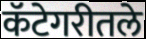
कॅटेगरीतले